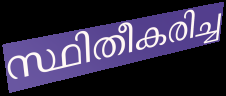
സ്ഥിതീകരിച്ച